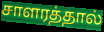
சாளரத்தால்